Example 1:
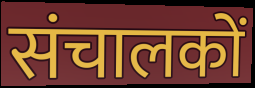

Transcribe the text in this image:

संचालकों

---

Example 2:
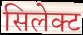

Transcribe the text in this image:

सिलेक्ट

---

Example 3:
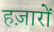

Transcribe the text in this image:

हज़ारों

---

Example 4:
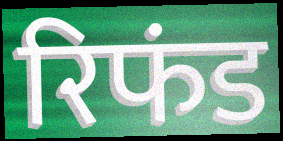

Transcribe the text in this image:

रिफंड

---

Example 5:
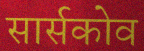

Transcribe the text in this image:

सार्सकोव